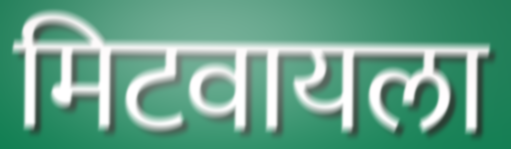
मिटवायला